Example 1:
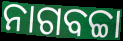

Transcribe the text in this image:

ନାଗବଚ୍ଚା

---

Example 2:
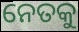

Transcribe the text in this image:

ନେତକୁ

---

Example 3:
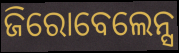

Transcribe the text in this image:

ଜିରୋବେଲେନ୍ସ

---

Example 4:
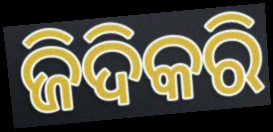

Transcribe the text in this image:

ଜିଦିକରି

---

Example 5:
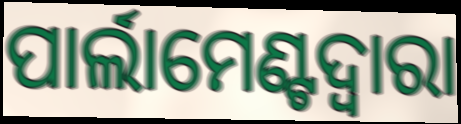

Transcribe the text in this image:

ପାର୍ଲାମେଣ୍ଟଦ୍ୱାରା